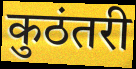
कुठंतरी